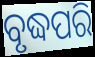
ବୃଦ୍ଧପରି